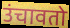
उंचावतो